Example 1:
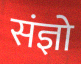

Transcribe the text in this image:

संज्ञो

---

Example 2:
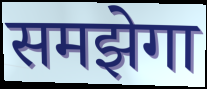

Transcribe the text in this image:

समझेगा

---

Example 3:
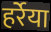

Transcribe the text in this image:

हर्रेया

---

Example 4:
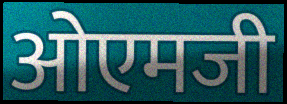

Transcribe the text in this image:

ओएमजी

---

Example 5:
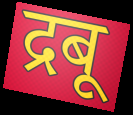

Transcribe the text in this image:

द्रबू